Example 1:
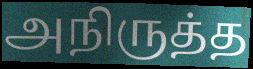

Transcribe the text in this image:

அநிருத்த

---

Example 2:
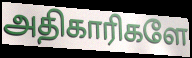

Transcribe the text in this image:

அதிகாரிகளே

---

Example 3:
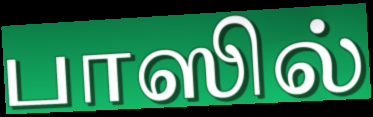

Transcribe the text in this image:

பாஸில்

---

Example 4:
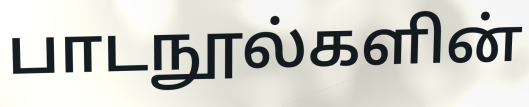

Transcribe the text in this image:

பாடநூல்களின்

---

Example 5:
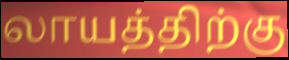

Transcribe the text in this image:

லாயத்திற்கு